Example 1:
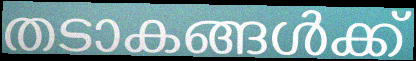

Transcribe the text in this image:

തടാകങ്ങൾക്ക്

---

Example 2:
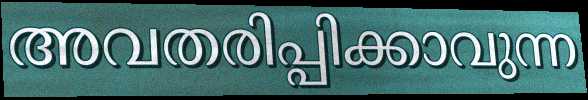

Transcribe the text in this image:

അവതരിപ്പിക്കാവുന്ന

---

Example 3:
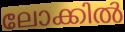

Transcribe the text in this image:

ലോക്കിൽ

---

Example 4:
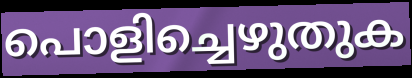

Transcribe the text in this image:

പൊളിച്ചെഴുതുക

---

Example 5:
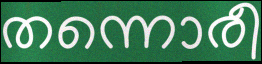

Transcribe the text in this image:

തന്നൊരീ